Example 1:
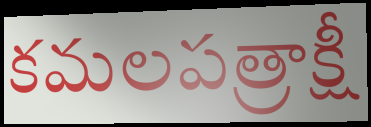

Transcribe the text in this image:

కమలపత్రాక్షీ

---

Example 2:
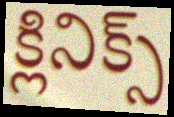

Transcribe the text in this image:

క్లినిక్స్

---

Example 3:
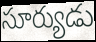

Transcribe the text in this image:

సూర్యుడు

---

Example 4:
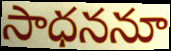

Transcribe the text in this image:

సాధననూ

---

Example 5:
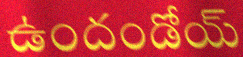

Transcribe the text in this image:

ఉందండోయ్